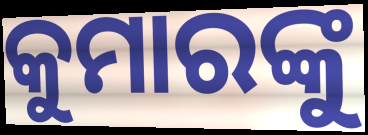
କୁମାରଙ୍କୁ